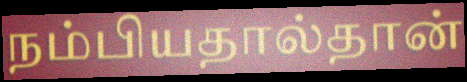
நம்பியதால்தான்